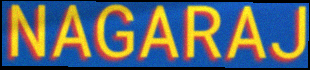
NAGARAJ